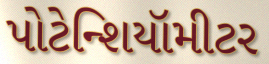
પોટેન્શિયૉમીટર